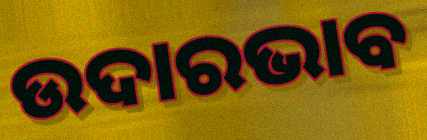
ଉଦାରଭାବ